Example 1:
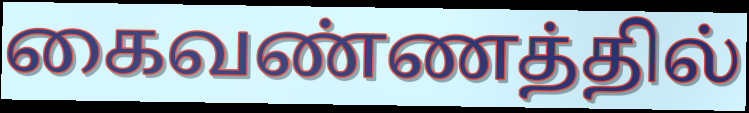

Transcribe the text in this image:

கைவண்ணத்தில்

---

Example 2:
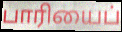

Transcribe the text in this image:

பாரியைப்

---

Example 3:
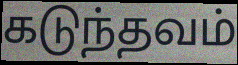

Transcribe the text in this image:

கடுந்தவம்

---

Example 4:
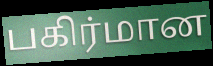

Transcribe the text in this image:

பகிர்மான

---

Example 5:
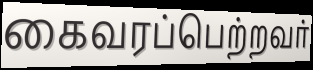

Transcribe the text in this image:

கைவரப்பெற்றவர்